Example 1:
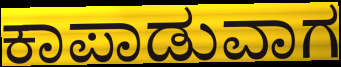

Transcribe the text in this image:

ಕಾಪಾಡುವಾಗ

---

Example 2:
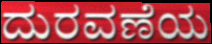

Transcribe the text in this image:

ದುರವಣೆಯ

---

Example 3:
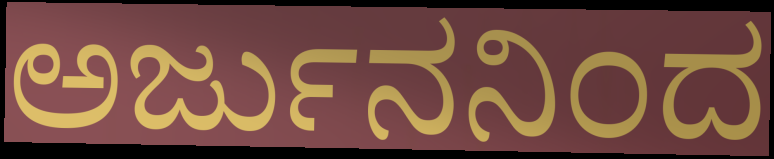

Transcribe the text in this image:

ಅರ್ಜುನನಿಂದ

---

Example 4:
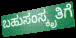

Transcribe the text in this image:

ಬಹುಸಂಸ್ಕೃತಿಗೆ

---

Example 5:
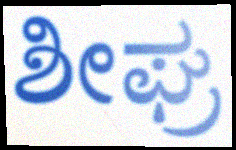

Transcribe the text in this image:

ಶೀಘ್ರ